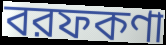
বরফকণা